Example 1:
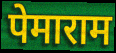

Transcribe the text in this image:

पेमाराम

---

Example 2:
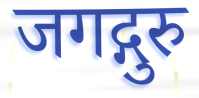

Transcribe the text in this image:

जगद्गुरु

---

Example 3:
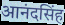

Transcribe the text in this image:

आनंदसिंह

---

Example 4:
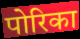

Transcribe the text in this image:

पोरिका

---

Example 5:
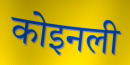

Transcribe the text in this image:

कोइनली